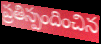
ప్రతిస్పందించిన